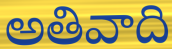
అతివాది